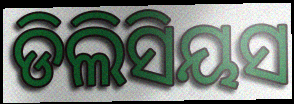
ଡିଲିସିୟସ